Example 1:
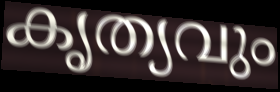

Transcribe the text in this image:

കൃത്യവും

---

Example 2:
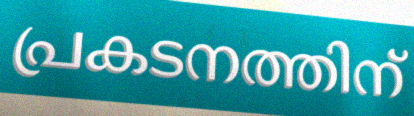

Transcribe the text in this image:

പ്രകടനത്തിന്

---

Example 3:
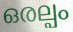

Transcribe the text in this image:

ഒരല്പം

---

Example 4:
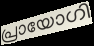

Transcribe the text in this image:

പ്രായോഗി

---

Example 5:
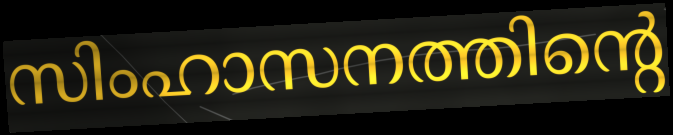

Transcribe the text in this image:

സിംഹാസനത്തിന്റെ